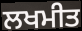
ਲਖਮੀਤ